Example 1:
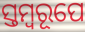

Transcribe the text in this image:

ସ୍ତମ୍ବରୂପେ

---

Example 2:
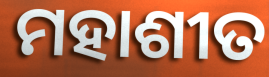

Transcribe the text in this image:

ମହାଶୀତ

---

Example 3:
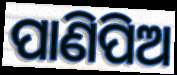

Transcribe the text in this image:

ପାଣିପିଅ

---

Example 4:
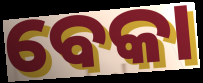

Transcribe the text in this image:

ବେକା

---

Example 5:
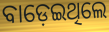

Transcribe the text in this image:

ବାଡ଼େଇଥିଲେ